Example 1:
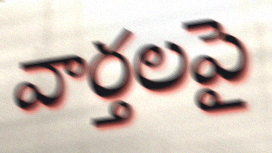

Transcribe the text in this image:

వార్తలపై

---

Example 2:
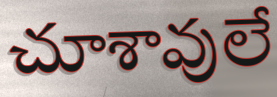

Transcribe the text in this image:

చూశావులే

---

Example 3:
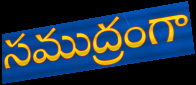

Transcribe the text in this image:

సముద్రంగా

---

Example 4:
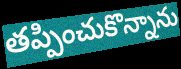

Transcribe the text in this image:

తప్పించుకొన్నాను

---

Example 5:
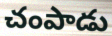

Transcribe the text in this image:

చంపాడు